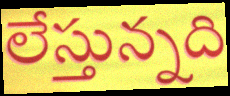
లేస్తున్నది